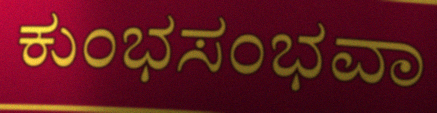
ಕುಂಭಸಂಭವಾ